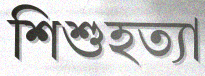
শিশুহত্যা